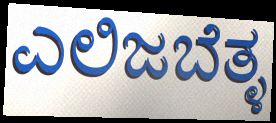
ಎಲಿಜಬೆತ್ಳ